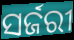
ସର୍ଜରୀ